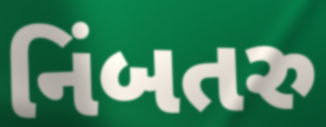
નિંબતરુ